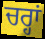
ਚਰ੍ਹਾਂ